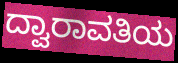
ದ್ವಾರಾವತಿಯ